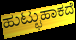
ಹುಟ್ಟುಹಾಕದೆ